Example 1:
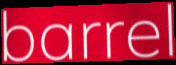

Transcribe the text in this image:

barrel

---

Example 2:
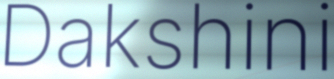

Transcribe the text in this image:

Dakshini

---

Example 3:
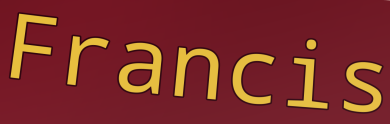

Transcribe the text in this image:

Francis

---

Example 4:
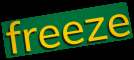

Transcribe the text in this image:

freeze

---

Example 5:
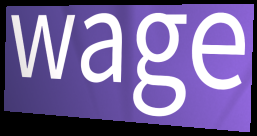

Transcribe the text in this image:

wage